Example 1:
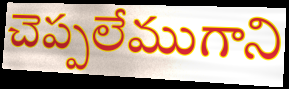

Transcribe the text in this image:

చెప్పలేముగాని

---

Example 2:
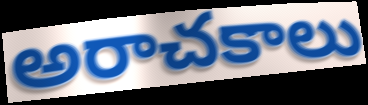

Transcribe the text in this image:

అరాచకాలు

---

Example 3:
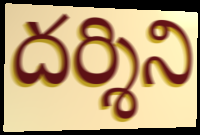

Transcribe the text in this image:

దర్శిని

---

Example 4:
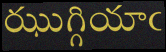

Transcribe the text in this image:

ఝుగ్గియాఁ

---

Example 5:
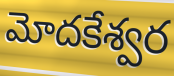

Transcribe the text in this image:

మోదకేశ్వర